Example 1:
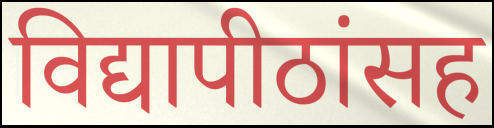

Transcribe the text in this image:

विद्यापीठांसह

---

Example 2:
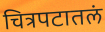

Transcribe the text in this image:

चित्रपटातलं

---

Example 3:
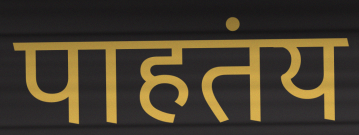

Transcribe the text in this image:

पाहतंय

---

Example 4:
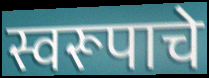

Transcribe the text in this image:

स्वरूपाचे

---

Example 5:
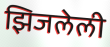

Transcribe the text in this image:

झिजलेली